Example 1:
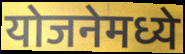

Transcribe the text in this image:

योजनेमध्ये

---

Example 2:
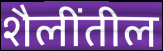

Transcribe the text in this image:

शैलींतील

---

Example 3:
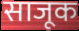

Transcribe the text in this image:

साजूक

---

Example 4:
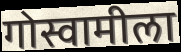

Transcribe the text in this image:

गोस्वामीला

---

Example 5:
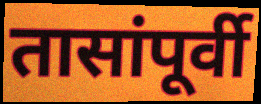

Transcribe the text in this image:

तासांपूर्वी